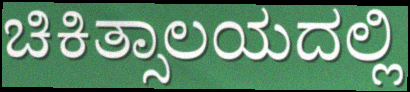
ಚಿಕಿತ್ಸಾಲಯದಲ್ಲಿ